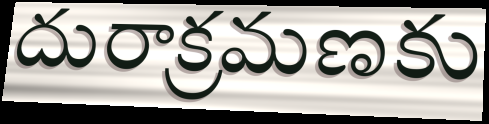
దురాక్రమణకు